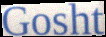
Gosht